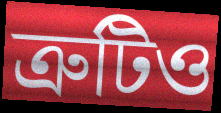
ত্রুটিও